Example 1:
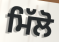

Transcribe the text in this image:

ਮਿੱਲੋ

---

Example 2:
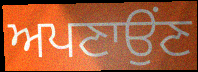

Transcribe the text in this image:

ਅਪਣਾਉਂਣ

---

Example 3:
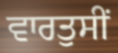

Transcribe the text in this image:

ਵਾਰਤੁਸੀਂ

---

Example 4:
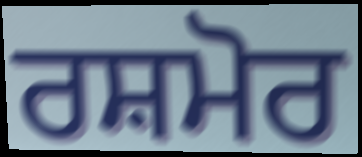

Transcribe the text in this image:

ਰਸ਼ਮੋਰ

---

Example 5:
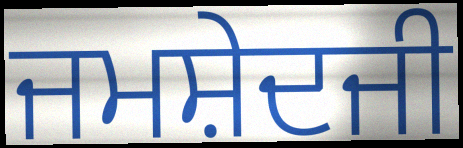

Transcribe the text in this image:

ਜਮਸ਼ੇਦਜੀ